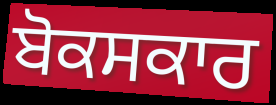
ਬੋਕਸਕਾਰ